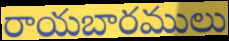
రాయబారములు